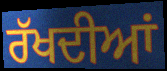
ਰੱਖਦੀਆਂ